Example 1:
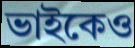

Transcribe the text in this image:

ভাইকেও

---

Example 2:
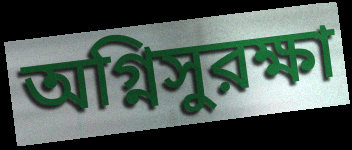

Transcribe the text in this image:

অগ্নিসুরক্ষা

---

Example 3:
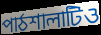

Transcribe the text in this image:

পাঠশালাটিও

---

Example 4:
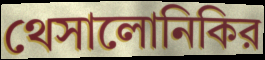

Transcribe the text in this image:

থেসালোনিকির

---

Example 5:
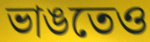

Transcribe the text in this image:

ভাঙতেও